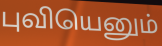
புவியெனும்